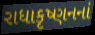
રાધાકૃષ્ણનનાં